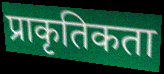
प्राकृतिकता